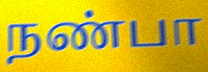
நண்பா